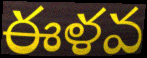
ఈళవ